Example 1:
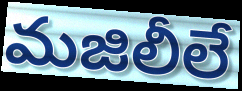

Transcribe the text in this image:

మజిలీలే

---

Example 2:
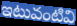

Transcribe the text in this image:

ఇటువంటివి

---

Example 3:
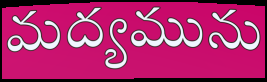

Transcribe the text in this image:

మద్యమును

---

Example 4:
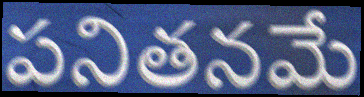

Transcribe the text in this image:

పనితనమే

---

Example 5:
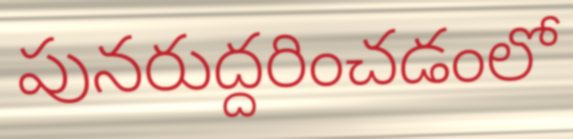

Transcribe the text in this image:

పునరుద్దరించడంలో